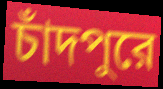
চাঁদপুরে